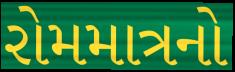
રોમમાત્રનો